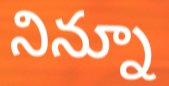
నిన్నూ